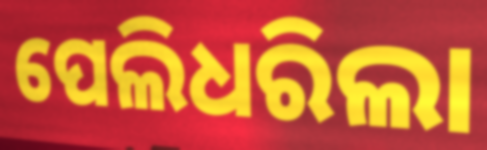
ପେଲିଧରିଲା